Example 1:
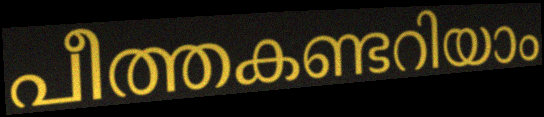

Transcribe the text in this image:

പീത്തകണ്ടറിയാം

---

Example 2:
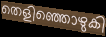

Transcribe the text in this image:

തെളിഞ്ഞൊഴുകി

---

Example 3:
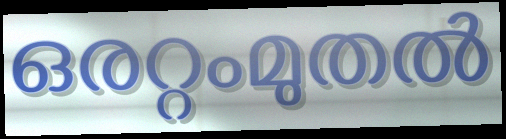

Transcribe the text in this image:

ഒരറ്റംമുതൽ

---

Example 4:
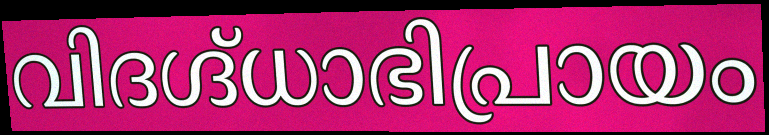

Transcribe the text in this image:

വിദഗ്ദ്ധാഭിപ്രായം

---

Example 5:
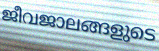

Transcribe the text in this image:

ജീവജാലങ്ങളുടെ